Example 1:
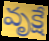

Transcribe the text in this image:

వృక్షే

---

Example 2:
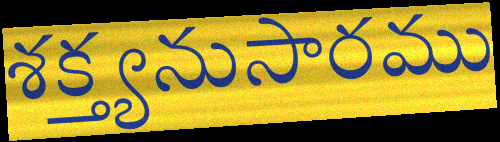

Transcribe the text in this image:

శక్త్యనుసారము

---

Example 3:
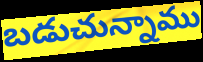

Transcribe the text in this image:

బడుచున్నాము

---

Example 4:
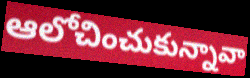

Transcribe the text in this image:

ఆలోచించుకున్నావా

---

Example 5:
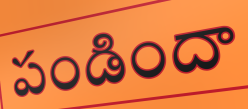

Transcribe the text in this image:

పండిందా